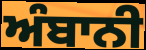
ਅੰਬਾਨੀ